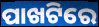
ପାଖଟିରେ